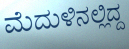
ಮೆದುಳಿನಲ್ಲಿದ್ದ